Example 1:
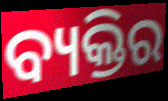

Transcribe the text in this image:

ବ୍ୟକ୍ତିର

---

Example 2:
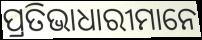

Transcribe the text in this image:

ପ୍ରତିଭାଧାରୀମାନେ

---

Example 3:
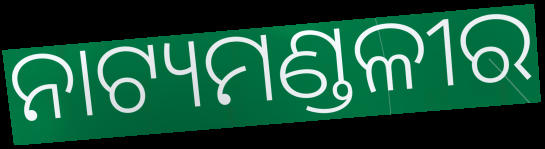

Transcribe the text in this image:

ନାଟ୍ୟମଣ୍ଡଳୀର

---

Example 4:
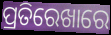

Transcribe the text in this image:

ପ୍ରତିରେଖାରେ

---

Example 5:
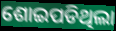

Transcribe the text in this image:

ଶୋଇପଡିଥିଲା